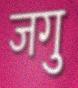
जगु